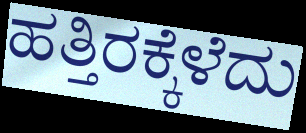
ಹತ್ತಿರಕ್ಕೆಳೆದು